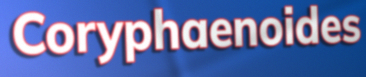
Coryphaenoides